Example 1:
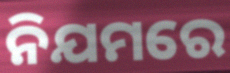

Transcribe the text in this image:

ନିଯମରେ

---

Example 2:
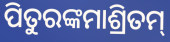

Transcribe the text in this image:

ପିତୁରଙ୍କମାଶ୍ରିତମ୍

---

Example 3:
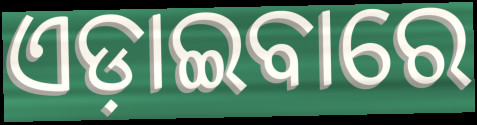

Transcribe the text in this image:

ଏଡ଼ାଇବାରେ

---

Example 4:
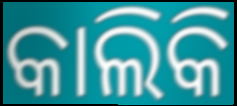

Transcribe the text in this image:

କାଲିକି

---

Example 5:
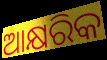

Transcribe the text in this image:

ଆକ୍ଷରିକ